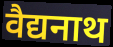
वैद्यनाथ